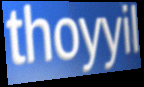
thoyyil